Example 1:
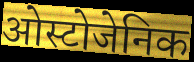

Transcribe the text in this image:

ओस्टोजेनिक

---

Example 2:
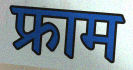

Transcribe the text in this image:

फ्राम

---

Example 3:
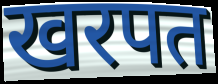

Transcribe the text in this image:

खरपत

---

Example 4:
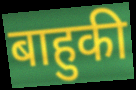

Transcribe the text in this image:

बाहुकी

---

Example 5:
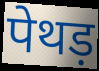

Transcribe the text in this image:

पेथड़